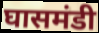
घासमंडी